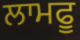
ਲਾਮਫੂ